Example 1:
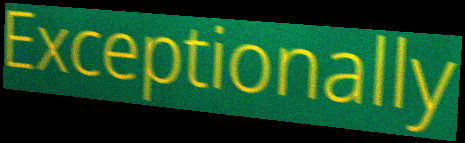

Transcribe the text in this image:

Exceptionally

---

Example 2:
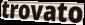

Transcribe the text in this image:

trovato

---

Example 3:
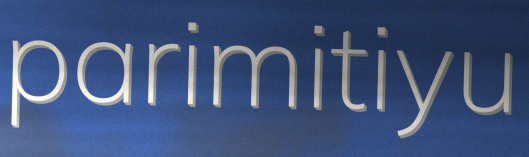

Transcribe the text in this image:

parimitiyu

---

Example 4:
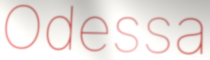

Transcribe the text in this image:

Odessa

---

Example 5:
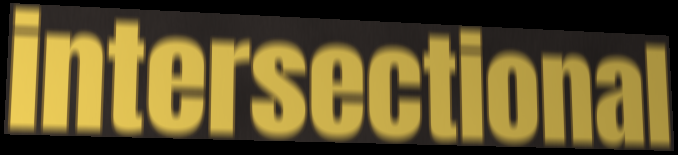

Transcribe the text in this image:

intersectional